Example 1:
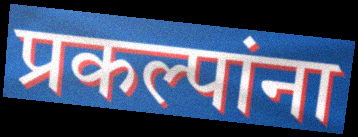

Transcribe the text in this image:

प्रकल्पांना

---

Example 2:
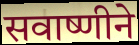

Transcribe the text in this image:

सवाष्णीने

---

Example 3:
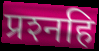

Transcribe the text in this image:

प्रश्नहि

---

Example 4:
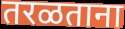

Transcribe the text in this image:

तरळताना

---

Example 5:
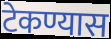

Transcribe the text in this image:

टेकण्यास